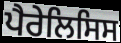
ਪੈਰੇਲਿਸਿਸ